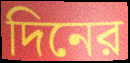
দিনের